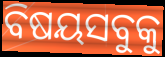
ବିଷୟସବୁକୁ